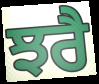
ਝਰੈ